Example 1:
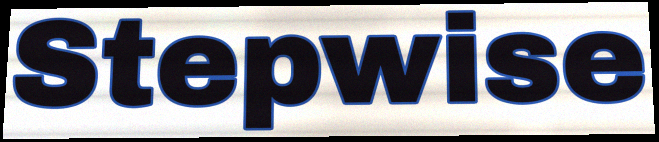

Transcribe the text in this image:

Stepwise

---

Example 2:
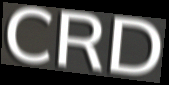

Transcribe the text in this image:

CRD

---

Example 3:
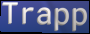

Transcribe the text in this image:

Trapp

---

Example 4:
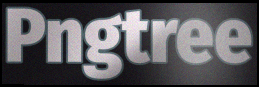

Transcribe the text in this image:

Pngtree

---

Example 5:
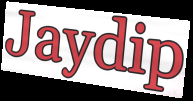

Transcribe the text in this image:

Jaydip